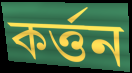
কর্ত্তন